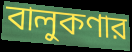
বালুকণার